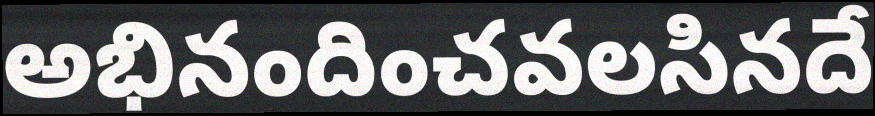
అభినందించవలసినదే